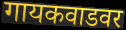
गायकवाडवर